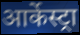
आर्केस्ट्रा